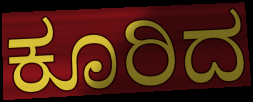
ಕೂರಿದ